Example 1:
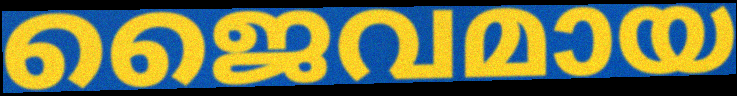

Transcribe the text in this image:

ജൈവമായ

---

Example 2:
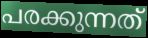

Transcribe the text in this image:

പരക്കുന്നത്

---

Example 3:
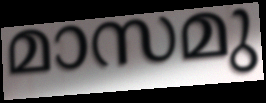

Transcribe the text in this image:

മാസമു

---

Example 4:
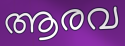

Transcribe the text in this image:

ആരവ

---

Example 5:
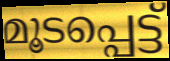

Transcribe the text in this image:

മൂടപ്പെട്ട്